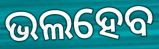
ଭଲହେବ